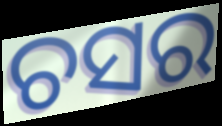
ଚସର